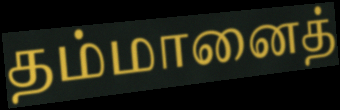
தம்மானைத்